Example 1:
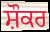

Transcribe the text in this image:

ਸ਼ੌਕਰ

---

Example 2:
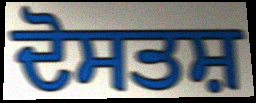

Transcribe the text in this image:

ਦੋਸਤਸ਼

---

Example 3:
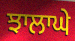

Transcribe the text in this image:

ਝਾਲਾਘੇ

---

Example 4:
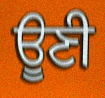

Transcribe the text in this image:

ਊਣੀ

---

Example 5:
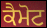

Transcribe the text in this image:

ਕੈਮੋਟ